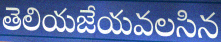
తెలియజేయవలసిన